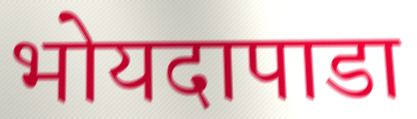
भोयदापाडा